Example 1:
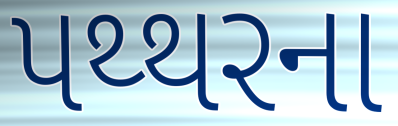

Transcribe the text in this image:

પથ્થરના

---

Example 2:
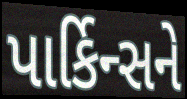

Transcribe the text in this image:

પાર્કિન્સને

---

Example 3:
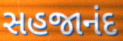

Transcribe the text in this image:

સહજાનંદ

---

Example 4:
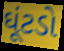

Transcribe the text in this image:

ઘૂંટડો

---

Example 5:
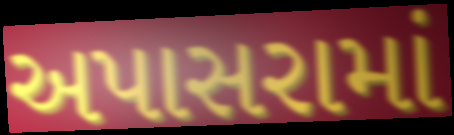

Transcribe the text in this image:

અપાસરામાં